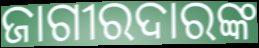
ଜାଗୀରଦାରଙ୍କ